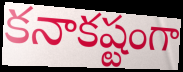
కనాకష్టంగా